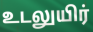
உடலுயிர்